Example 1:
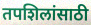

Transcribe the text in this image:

तपशिलांसाठी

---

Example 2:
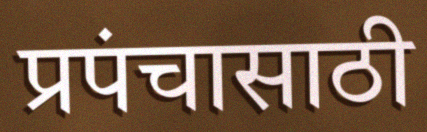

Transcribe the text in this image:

प्रपंचासाठी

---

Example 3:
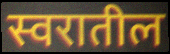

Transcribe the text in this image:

स्वरातील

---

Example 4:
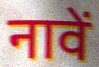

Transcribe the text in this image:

नावें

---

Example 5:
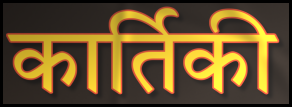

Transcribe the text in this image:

कार्तिकी